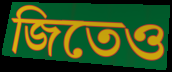
জিতেও